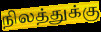
நிலத்துக்கு